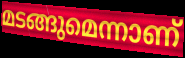
മടങ്ങുമെന്നാണ്